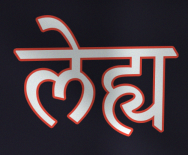
लेह्य